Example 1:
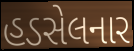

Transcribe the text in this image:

હડસેલનાર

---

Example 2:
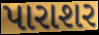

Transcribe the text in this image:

પારાશર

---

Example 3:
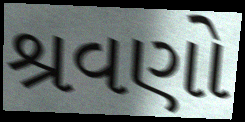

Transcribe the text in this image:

શ્રવણો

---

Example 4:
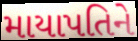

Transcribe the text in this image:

માયાપતિને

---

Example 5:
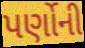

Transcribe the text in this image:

પર્ણોની